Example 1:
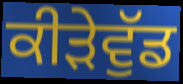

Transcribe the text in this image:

ਕੀੜੇਵੁੱਡ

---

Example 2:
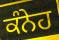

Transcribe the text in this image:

ਕੰਨੇਹ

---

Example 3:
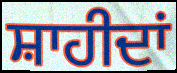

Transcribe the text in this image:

ਸ਼ਾਹੀਦਾਂ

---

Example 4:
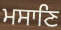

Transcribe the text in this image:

ਮਸਾਣਿ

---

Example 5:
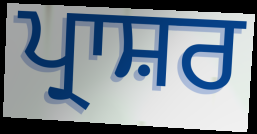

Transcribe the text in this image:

ਪ੍ਰਾਸ਼ਰ